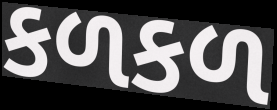
કળકળ